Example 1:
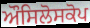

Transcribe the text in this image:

ਔਸਿਲੋਸਕੋਪ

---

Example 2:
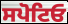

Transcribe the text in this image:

ਸਪੋਟਿਓ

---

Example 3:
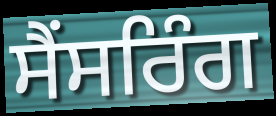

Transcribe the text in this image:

ਸੈਂਸਰਿੰਗ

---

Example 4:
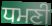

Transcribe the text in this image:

ਧਮਣੀ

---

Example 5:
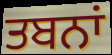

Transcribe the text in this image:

ਤਬਨਾਂ